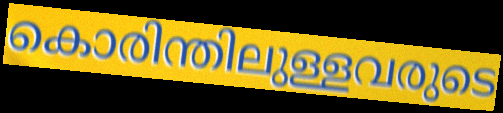
കൊരിന്തിലുള്ളവരുടെ